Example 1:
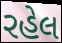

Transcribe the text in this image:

રહેલ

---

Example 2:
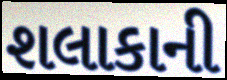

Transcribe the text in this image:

શલાકાની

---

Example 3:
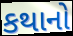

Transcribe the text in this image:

કથાનો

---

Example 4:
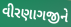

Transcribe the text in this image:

વીરણાગજીને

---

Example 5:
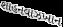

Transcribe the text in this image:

શાહનવાઝખાન